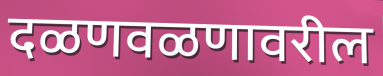
दळणवळणावरील